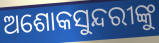
ଅଶୋକସୁନ୍ଦରୀଙ୍କୁ